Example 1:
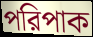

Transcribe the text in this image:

পরিপাক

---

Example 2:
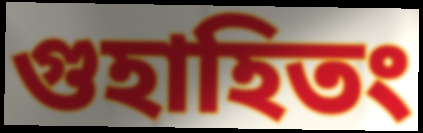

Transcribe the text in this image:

গুহাহিতং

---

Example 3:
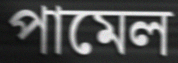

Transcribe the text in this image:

পামেল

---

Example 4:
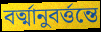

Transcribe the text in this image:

বর্ত্মানুবর্ত্তন্তে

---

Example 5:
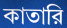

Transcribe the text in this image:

কাতারি